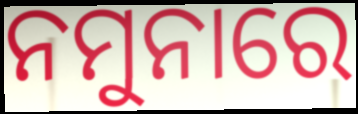
ନମୁନାରେ